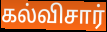
கல்விசார்